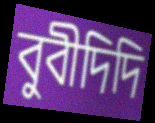
বুবীদিদি